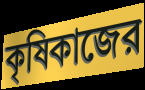
কৃষিকাজের